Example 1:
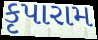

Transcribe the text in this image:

કૃપારામ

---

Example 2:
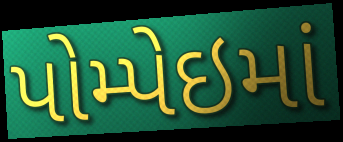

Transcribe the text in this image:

પોમ્પેઇમાં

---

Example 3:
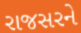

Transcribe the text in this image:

રાજસરને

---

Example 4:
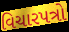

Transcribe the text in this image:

વિચારપત્રો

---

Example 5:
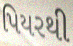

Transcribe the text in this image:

પિયરથી